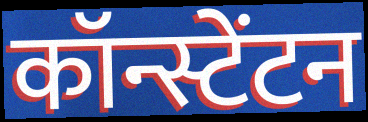
कॉन्स्टेंटन